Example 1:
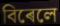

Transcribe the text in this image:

বিৰেলে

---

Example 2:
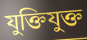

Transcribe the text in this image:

যুক্তিযুক্ত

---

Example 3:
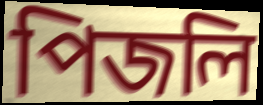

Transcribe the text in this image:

পিজলি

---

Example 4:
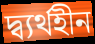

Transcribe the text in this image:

দ্ব্যৰ্থহীন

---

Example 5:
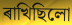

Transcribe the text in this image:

ৰাখিছিলো